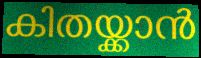
കിതയ്ക്കാൻ